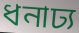
ধনাঢ্য